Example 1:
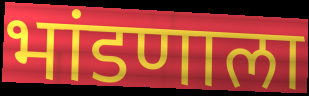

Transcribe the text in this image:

भांडणाला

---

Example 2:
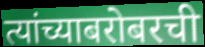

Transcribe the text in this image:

त्यांच्याबरोबरची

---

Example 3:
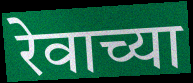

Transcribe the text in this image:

रेवाच्या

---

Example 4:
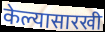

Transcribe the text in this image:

केल्यासारखी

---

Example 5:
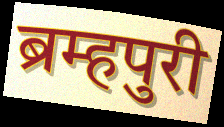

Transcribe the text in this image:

ब्रम्हपुरी